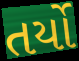
તર્યો